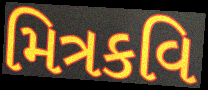
મિત્રકવિ